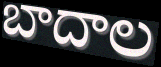
బాదాల